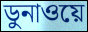
ডুনাওয়ে